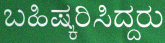
ಬಹಿಷ್ಕರಿಸಿದ್ದರು